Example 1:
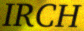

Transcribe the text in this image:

IRCH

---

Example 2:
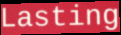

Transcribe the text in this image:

Lasting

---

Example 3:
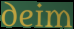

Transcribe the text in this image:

deim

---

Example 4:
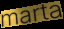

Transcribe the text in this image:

marta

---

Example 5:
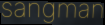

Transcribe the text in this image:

sangman